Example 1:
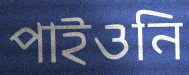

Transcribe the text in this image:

পাইওনি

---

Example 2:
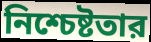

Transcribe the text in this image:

নিশ্চেষ্টতার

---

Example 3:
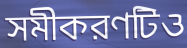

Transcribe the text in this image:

সমীকরণটিও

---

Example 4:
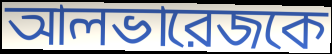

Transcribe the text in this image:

আলভারেজকে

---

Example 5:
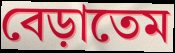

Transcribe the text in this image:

বেড়াতেম